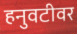
हनुवटीवर